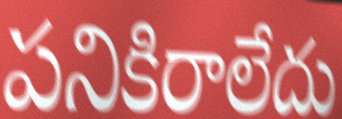
పనికిరాలేదు